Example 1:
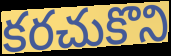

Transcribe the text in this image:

కరచుకొని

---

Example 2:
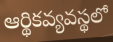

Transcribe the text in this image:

ఆర్థికవ్యవస్థలో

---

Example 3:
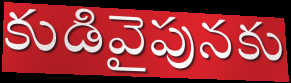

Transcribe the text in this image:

కుడివైపునకు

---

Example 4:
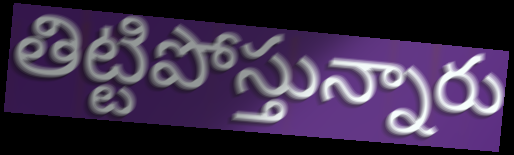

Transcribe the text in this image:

తిట్టిపోస్తున్నారు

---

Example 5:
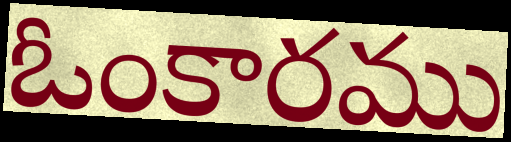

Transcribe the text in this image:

ఓంకారము